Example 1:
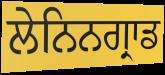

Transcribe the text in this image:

ਲੇਨਿਨਗ੍ਰਾਡ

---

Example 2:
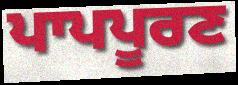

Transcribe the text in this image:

ਪਾਪਪੂਰਣ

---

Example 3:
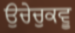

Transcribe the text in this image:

ਉਚੇਚੁਕਵੂ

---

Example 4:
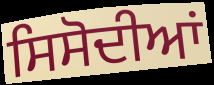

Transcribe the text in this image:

ਸਿਸੋਦੀਆਂ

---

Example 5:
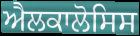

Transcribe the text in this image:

ਐਲਕਾਲੋਸਿਸ